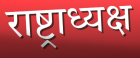
राष्ट्राध्यक्ष